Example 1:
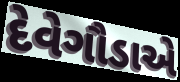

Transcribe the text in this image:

દેવેગૌડાએ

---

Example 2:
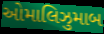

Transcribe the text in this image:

ઓમાલિઝુમાબ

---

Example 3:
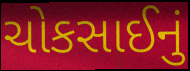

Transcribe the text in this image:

ચોકસાઈનું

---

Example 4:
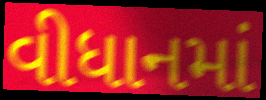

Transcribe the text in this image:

વીધાનમાં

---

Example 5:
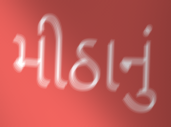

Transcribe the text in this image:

મીઠાનું